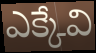
ఎక్కేవి